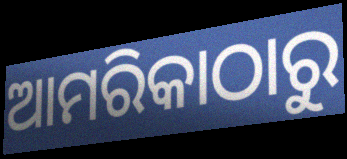
ଆମରିକାଠାରୁ